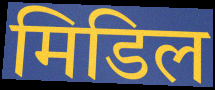
मिडिल